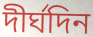
দীর্ঘদিন